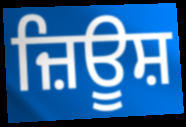
ਜ਼ਿਊਸ਼